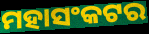
ମହାସଂକଟର